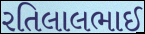
રતિલાલભાઈ